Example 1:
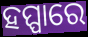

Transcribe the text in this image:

ହପ୍ପାରେ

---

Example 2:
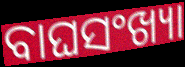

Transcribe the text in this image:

ବାଘସଂଖ୍ୟା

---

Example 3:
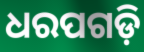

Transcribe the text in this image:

ଧରପଗଡ଼ି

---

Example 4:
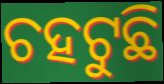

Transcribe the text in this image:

ଚହଟୁଛି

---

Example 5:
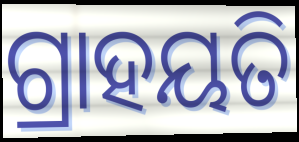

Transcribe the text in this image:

ଗ୍ରାହୟତି